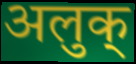
अलुक्